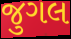
જુગલ